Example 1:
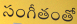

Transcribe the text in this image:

సంగీతంతో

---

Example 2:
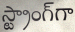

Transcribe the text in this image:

స్ట్రాంగ్‌గా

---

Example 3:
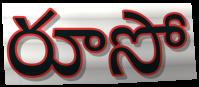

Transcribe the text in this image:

రూసో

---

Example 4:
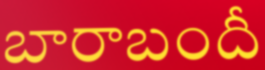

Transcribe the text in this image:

బారాబందీ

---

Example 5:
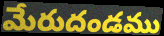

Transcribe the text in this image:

మేరుదండము